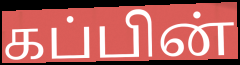
கப்பின்